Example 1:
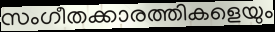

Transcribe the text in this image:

സംഗീതക്കാരത്തികളെയും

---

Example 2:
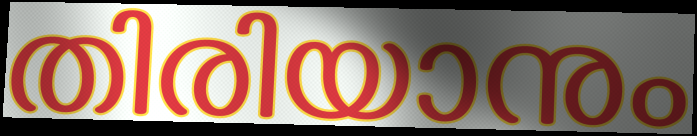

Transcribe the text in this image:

തിരിയാനും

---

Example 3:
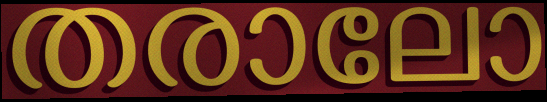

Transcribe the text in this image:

തരാലോ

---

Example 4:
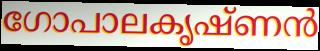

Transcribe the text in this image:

ഗോപാലകൃഷ്ണൻ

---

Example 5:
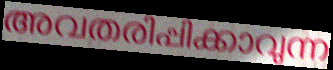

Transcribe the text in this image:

അവതരിപ്പിക്കാവുന്ന